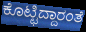
ಕೊಟ್ಟಿದ್ದಾರಂತೆ